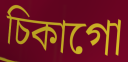
চিকাগো